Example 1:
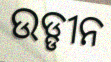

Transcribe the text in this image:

ଉଡ୍ଡୀନ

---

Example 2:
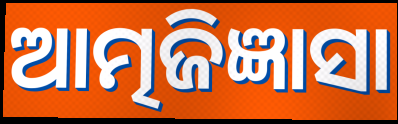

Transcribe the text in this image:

ଆତ୍ମଜିଜ୍ଞାସା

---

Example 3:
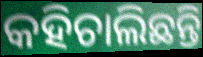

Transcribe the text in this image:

କହିଚାଲିଛନ୍ତି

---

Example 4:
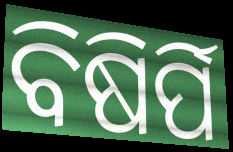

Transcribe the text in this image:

ବିଷିର୍ପି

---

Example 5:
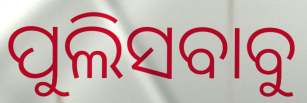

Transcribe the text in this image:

ପୁଲିସବାବୁ